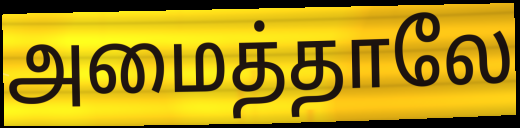
அமைத்தாலே